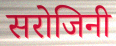
सरोजिनी